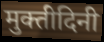
मुक्तीदिनी